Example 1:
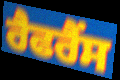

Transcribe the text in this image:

ਰੈਫਰੈਂਸ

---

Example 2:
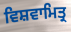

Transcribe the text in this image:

ਵਿਸ਼ਵਾਮਿਤ੍ਰ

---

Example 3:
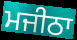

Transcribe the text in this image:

ਮਜੀਠਾ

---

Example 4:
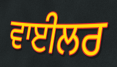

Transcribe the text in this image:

ਵਾਈਲਰ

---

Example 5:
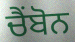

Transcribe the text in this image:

ਚੈਂਬੋਨ